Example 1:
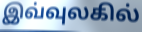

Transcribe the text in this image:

இவ்வுலகில்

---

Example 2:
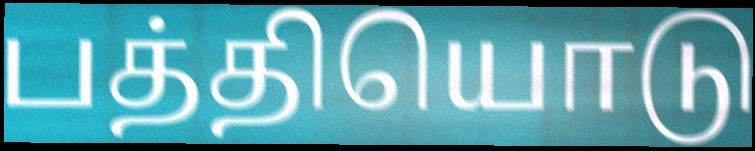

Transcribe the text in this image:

பத்தியொடு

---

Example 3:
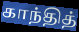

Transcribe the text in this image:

காந்தித்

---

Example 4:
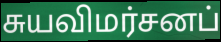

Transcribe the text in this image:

சுயவிமர்சனப்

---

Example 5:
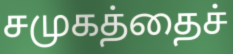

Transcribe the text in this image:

சமுகத்தைச்